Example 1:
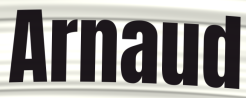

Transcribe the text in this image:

Arnaud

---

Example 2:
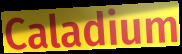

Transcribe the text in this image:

Caladium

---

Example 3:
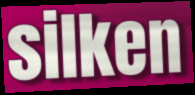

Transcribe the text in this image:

silken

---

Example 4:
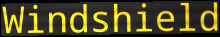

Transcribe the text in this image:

Windshield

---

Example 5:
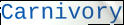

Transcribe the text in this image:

Carnivory